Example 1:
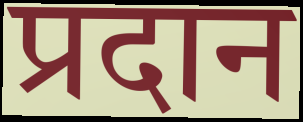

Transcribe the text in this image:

प्रदान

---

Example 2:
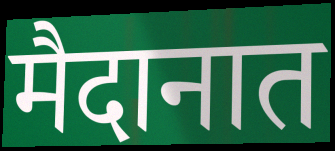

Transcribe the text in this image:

मैदानात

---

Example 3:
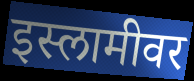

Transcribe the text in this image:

इस्लामीवर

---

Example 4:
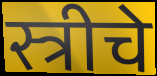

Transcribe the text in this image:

स्त्रीचे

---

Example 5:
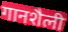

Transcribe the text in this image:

गानशैली